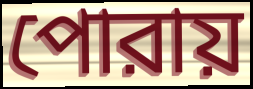
পোরায়